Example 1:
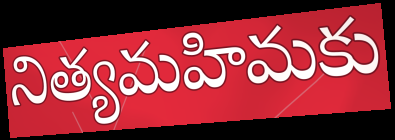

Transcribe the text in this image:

నిత్యమహిమకు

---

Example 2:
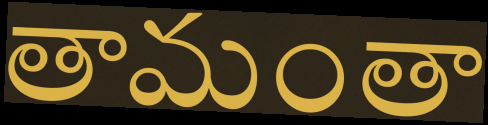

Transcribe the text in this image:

తామంతా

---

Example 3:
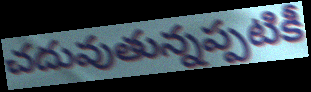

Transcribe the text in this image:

చదువుతున్నప్పటికీ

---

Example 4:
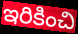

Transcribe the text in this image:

ఇరికించి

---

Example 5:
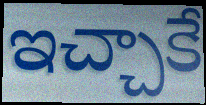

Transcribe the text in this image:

ఇచ్చాకే